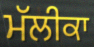
ਮੱਲੀਕਾ